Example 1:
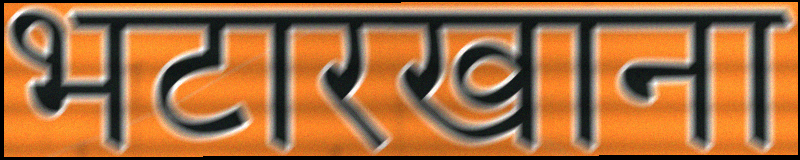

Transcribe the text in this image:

भटारखाना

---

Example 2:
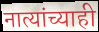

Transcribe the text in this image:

नात्यांच्याही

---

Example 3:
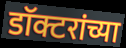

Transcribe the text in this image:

डॉक्टरांच्या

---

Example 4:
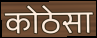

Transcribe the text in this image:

कोठेसा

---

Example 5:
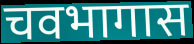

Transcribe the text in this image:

चवभागास